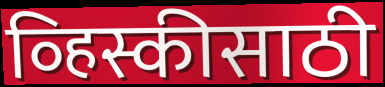
व्हिस्कीसाठी